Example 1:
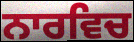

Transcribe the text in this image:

ਨਾਰਵਿਚ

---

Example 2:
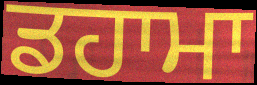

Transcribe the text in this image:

ਡਹਾਮਾ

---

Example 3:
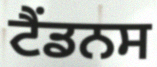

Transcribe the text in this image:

ਟੈਂਡਨਸ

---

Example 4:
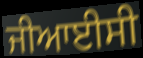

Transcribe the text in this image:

ਜੀਆਈਸੀ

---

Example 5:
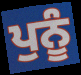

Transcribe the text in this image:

ਪੁਨੂੰ